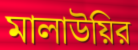
মালাউয়ির